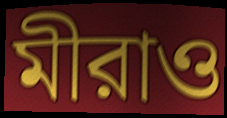
মীরাও